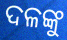
ଦଳଙ୍କୁ